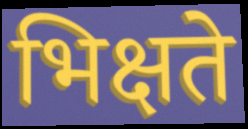
भिक्षते